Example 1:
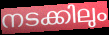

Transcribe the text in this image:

നടക്കിലും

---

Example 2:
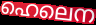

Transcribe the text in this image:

ഹെലെന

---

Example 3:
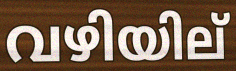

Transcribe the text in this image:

വഴിയില്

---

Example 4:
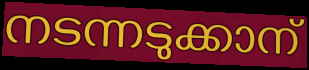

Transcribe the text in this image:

നടന്നടുക്കാന്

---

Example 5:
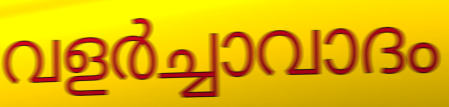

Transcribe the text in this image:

വളർച്ചാവാദം